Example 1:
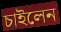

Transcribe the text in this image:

চাইলেন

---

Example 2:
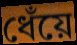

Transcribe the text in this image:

ধেঁয়ে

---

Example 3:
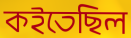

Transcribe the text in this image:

কইতেছিল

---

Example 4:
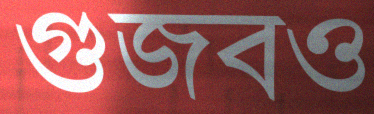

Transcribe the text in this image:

গুজবও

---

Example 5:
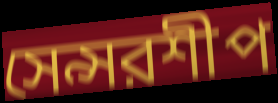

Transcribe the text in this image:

সেন্সরশীপ